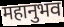
महानुभव